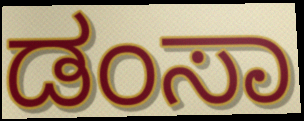
ಡಂಸಾ